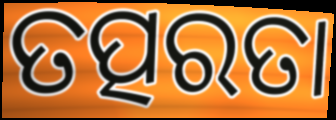
ତତ୍ପରତା